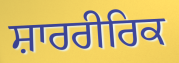
ਸ਼ਾਰਰੀਰਿਕ